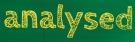
analysed